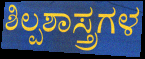
ಶಿಲ್ಪಶಾಸ್ತ್ರಗಳ